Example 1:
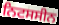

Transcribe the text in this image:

ਨਿਟਸਸੀਨ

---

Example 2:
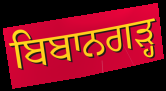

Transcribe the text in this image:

ਬਿਬਾਨਗੜ੍ਹ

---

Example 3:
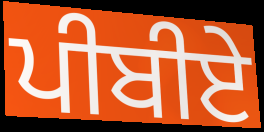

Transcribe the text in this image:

ਪੀਬੀਏ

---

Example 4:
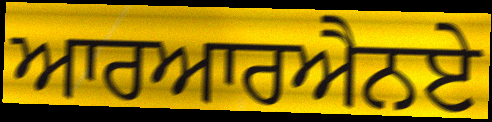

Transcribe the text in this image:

ਆਰਆਰਐਨਏ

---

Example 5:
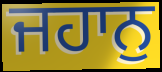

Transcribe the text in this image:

ਜਹਾਨੁ